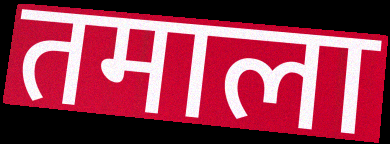
तमाला